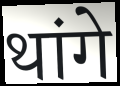
थांगे